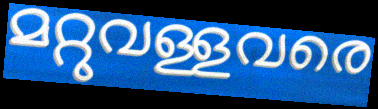
മറ്റുവള്ളവരെ